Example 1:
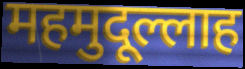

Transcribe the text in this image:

महमुदूल्लाह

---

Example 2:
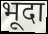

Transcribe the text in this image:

भूदा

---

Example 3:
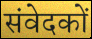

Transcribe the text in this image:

संवेदकों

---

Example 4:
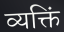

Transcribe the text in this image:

व्यक्तिं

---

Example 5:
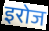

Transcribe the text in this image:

इरोज